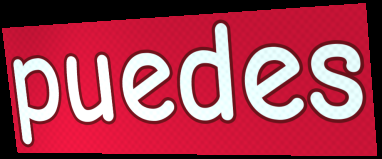
puedes